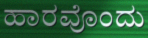
ಹಾರವೊಂದು